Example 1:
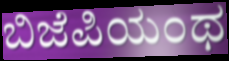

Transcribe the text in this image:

ಬಿಜೆಪಿಯಂಥ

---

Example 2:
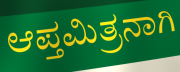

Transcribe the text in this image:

ಆಪ್ತಮಿತ್ರನಾಗಿ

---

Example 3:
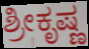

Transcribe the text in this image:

ಶ್ರೀಕೃಷ್ಣ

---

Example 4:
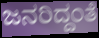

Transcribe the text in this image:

ಜನರಿದ್ದಂತೆ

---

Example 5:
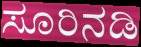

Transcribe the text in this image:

ಸೂರಿನಡಿ